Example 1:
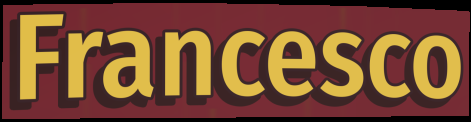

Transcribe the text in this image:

Francesco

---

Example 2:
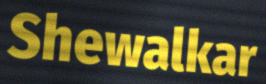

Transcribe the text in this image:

Shewalkar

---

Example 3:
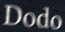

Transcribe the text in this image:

Dodo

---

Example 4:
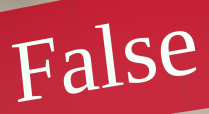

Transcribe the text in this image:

False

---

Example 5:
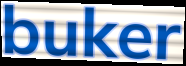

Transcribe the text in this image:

buker